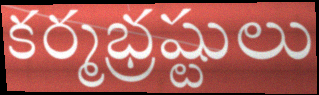
కర్మభ్రష్టులు